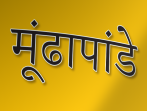
मूंढापांडे